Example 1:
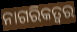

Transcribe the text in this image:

ନାଗରିକତ୍ଵର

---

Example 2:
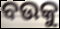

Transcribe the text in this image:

ବଉକୁ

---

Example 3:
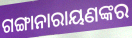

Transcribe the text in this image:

ଗଙ୍ଗାନାରାୟଣଙ୍କର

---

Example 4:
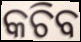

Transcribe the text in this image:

କଚିବ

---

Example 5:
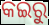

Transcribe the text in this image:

କଇରୁ